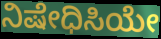
ನಿಷೇಧಿಸಿಯೇ